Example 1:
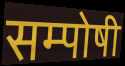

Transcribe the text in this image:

सम्पोषी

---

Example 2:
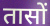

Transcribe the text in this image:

तासों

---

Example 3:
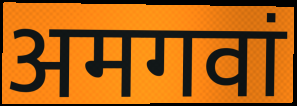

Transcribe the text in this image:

अमगवां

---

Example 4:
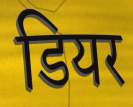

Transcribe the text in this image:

डियर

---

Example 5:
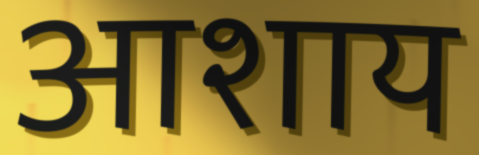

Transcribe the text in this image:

आशाय